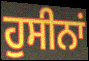
ਹੁਸੀਨਾਂ